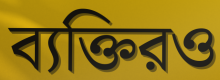
ব্যক্তিরও